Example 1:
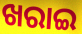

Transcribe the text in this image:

ଖରାଇ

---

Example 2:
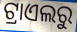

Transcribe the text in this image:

ଟ୍ରାଏଲରୁ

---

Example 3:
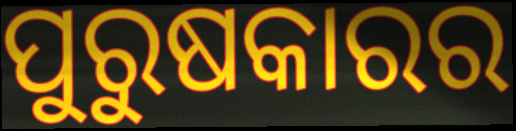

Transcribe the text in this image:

ପୁରୁଷକାରର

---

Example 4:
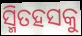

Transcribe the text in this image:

ସ୍ମିତହସକୁ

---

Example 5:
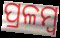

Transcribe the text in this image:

ପ୍ରଳମ୍ବ